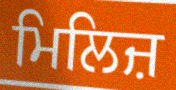
ਮਿਲਿਜ਼